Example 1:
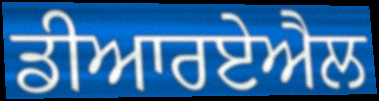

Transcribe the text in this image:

ਡੀਆਰਏਐਲ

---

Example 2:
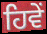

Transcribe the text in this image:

ਹਿਵੇਂ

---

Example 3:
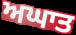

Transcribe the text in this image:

ਅਘਾਤ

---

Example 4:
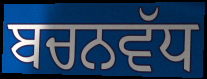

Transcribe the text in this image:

ਬਚਨਵੱਧ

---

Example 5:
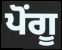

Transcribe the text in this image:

ਪੋਂਗੂ